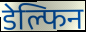
डेल्फिन